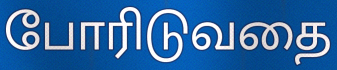
போரிடுவதை